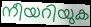
നീയറിയുക